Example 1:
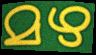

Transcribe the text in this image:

മഴ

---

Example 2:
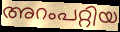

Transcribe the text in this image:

അറംപറ്റിയ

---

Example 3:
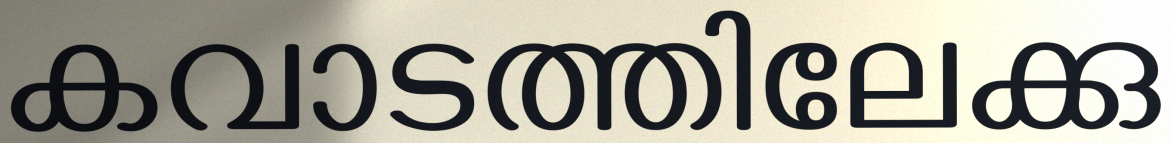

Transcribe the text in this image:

കവാടത്തിലേക്കു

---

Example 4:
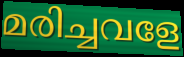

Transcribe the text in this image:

മരിച്ചവളേ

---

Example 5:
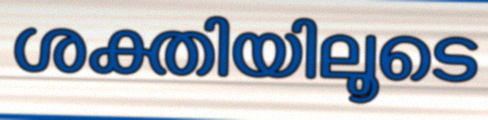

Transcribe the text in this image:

ശക്തിയിലൂടെ